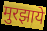
मुरझाये